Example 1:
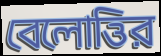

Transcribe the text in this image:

বেলোত্তির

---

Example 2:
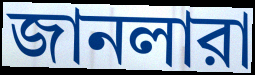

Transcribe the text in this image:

জানলারা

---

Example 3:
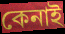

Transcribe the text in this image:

কেনাই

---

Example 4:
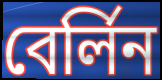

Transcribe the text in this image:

বের্লিন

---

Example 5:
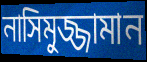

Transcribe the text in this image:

নাসিমুজ্জামান